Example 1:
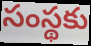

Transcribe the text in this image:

సంస్థకు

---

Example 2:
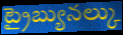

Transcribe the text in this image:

ట్రైబ్యునల్కు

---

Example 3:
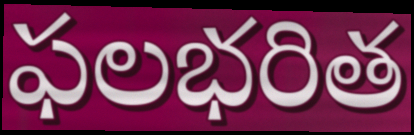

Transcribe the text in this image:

ఫలభరిత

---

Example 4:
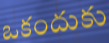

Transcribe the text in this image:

ఒకందుకు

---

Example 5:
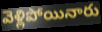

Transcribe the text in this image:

వెళ్లిపోయినారు